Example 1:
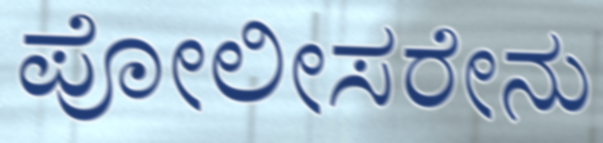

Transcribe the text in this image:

ಪೋಲೀಸರೇನು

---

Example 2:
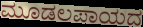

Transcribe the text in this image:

ಮೂಡಲಪಾಯದ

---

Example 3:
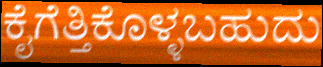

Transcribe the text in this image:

ಕೈಗೆತ್ತಿಕೊಳ್ಳಬಹುದು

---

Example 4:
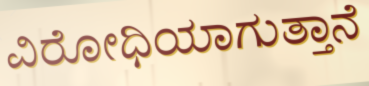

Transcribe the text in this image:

ವಿರೋಧಿಯಾಗುತ್ತಾನೆ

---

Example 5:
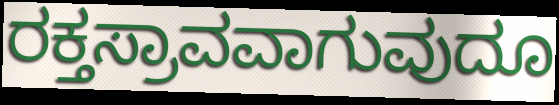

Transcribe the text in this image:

ರಕ್ತಸ್ರಾವವಾಗುವುದೂ